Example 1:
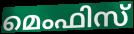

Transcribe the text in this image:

മെംഫിസ്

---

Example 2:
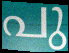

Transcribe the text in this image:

പു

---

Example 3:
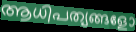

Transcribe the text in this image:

ആധിപത്യങ്ങളോ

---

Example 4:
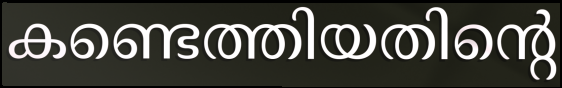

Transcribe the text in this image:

കണ്ടെത്തിയതിന്റെ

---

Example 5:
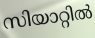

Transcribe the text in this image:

സിയാറ്റിൽ